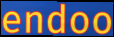
endoo